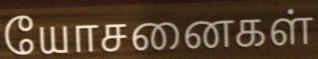
யோசனைகள்